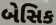
બેસિક